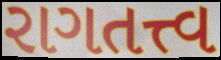
રાગતત્ત્વ